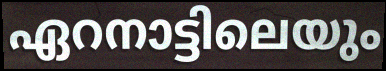
ഏറനാട്ടിലെയും